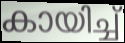
കായിച്ച്